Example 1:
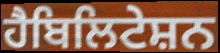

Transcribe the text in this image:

ਹੈਬਿਲਿਟੇਸ਼ਨ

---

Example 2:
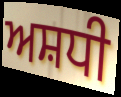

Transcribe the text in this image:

ਅਸ਼ਧੀ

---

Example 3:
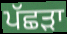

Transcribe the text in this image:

ਪੱਛੜਾ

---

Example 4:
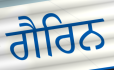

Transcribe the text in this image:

ਗੈਰਿਨ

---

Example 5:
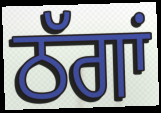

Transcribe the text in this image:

ਠੱਗਾਂ